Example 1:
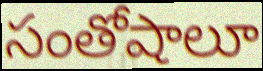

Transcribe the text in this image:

సంతోషాలూ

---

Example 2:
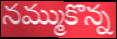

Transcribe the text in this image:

నమ్ముకొన్న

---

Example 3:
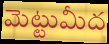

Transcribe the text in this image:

మెట్టుమీద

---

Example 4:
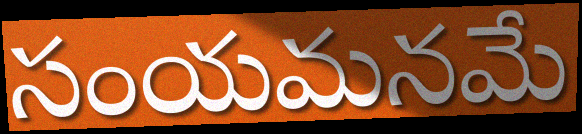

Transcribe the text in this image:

సంయమనమే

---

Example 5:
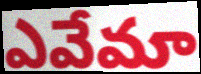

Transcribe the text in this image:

ఎవేమా